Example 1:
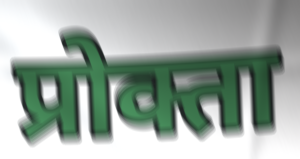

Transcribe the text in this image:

प्रोक्ता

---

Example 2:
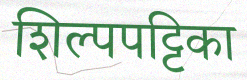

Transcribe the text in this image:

शिल्पपट्टिका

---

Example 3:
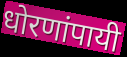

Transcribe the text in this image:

धोरणांपायी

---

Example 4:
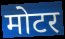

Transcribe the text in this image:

मोटर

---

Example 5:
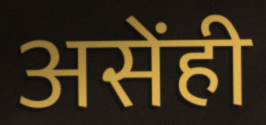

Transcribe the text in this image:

असेंही